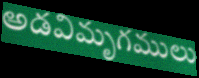
అడవిమృగములు